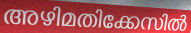
അഴിമതിക്കേസിൽ